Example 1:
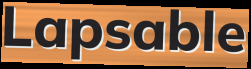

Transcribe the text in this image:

Lapsable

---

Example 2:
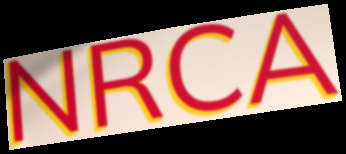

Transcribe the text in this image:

NRCA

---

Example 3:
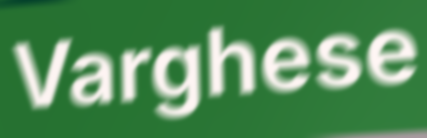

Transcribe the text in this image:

Varghese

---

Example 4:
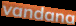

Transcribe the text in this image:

vandana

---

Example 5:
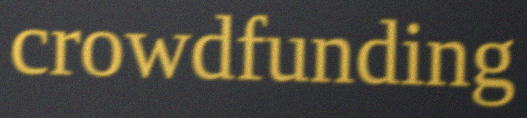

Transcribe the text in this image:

crowdfunding